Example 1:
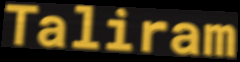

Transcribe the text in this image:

Taliram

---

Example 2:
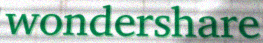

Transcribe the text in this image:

wondershare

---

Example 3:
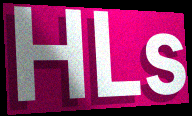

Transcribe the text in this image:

HLs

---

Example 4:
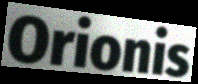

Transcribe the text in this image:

Orionis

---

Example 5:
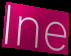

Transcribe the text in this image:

Ine